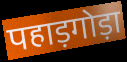
पहाड़गोड़ा